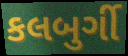
કલબુર્ગી